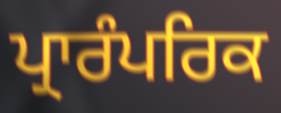
ਪ੍ਰਾਰੰਪਰਿਕ